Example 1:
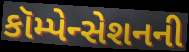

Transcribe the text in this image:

કૉમ્પેન્સેશનની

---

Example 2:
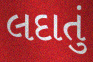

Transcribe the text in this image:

લદાતું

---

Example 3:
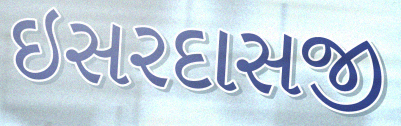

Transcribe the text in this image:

ઇસરદાસજી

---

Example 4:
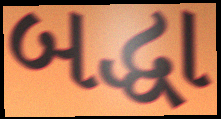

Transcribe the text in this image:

બદ્ધા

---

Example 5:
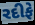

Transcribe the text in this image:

રદીફે